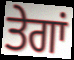
ਤੇਗਾਂ